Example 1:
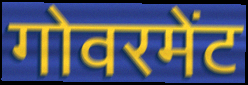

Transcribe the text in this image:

गोवरमेंट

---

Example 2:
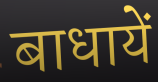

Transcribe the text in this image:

बाधायें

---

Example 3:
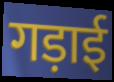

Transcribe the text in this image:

गड़ाई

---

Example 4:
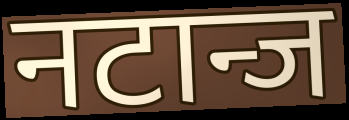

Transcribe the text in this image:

नटान्ज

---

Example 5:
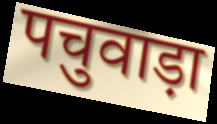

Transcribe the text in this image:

पचुवाड़ा